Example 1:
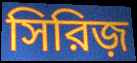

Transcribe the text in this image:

সিরিজ়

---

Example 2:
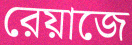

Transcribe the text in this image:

রেয়াজে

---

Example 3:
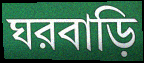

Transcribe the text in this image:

ঘরবাড়ি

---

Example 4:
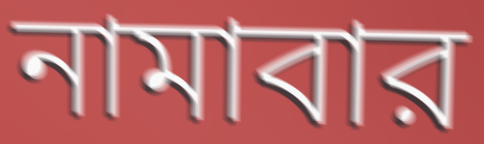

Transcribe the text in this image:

নামাবার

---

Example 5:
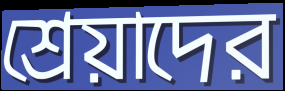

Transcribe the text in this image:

শ্রেয়াদের